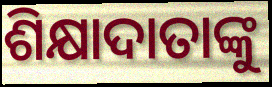
ଶିକ୍ଷାଦାତାଙ୍କୁ